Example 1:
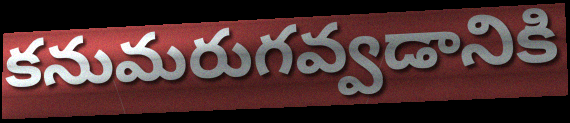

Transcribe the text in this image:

కనుమరుగవ్వడానికి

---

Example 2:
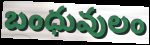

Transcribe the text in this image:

బంధువులం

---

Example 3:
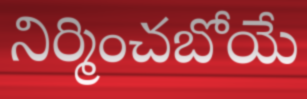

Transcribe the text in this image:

నిర్మించబోయే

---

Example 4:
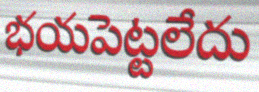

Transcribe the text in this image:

భయపెట్టలేదు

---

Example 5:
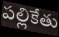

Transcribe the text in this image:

పల్లికేతు